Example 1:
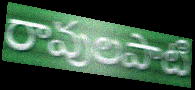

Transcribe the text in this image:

రావులపాటి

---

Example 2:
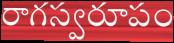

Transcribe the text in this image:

రాగస్వరూపం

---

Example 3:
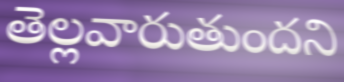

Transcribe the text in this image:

తెల్లవారుతుందని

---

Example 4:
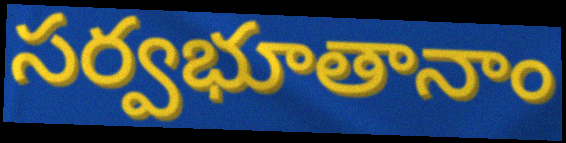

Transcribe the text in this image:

సర్వభూతానాం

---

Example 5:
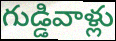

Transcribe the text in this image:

గుడ్డివాళ్లు